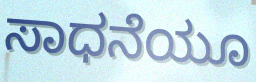
ಸಾಧನೆಯೂ